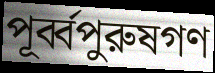
পূর্ব্বপুরুষগণ